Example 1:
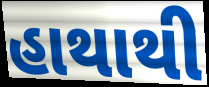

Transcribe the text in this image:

હાથાથી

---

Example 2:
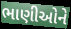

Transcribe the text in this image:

ભાણીઓને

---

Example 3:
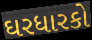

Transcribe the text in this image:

ઘરધારકો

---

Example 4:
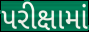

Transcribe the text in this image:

પરીક્ષામાં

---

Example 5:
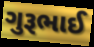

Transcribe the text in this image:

ગુરૂભાઈ